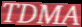
TDMA